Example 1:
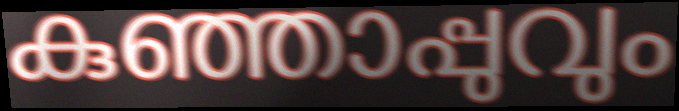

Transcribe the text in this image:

കുഞ്ഞാപ്പുവും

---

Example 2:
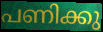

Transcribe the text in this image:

പണിക്കു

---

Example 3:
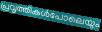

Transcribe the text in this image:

പ്രവൃത്തികൾപോലെയും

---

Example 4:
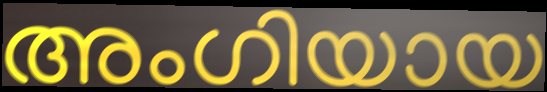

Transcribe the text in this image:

അംഗിയായ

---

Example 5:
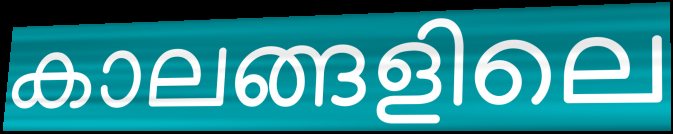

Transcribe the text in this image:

കാലങ്ങളിലെ